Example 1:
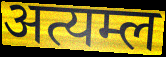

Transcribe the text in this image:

अत्यम्ल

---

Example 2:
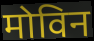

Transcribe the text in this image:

मोविन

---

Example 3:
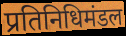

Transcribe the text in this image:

प्रतिनिधिमंडल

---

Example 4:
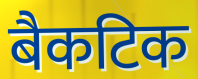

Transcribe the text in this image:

बैकटिक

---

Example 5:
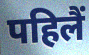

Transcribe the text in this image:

पहिलैं